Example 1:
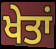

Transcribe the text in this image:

ਖੇਤਾਂ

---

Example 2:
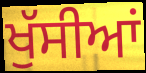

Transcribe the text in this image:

ਖੁੱਸੀਆਂ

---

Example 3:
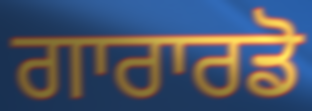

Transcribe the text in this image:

ਗਾਰਾਰਡੋ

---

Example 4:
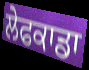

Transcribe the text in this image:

ਲੇਫਕਾਡਾ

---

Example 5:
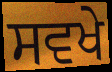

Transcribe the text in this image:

ਸਵਖੇ